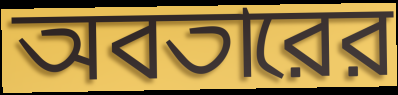
অবতারের